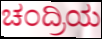
ಚಂದ್ರಿಯ